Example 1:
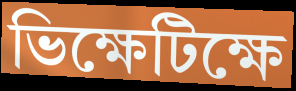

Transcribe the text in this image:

ভিক্ষেটিক্ষে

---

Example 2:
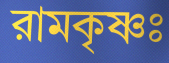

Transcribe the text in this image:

রামকৃষ্ণঃ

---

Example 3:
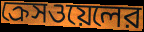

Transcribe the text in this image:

ক্রেসওয়েলের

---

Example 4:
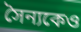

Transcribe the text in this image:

সৈন্যকেও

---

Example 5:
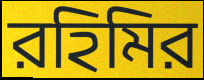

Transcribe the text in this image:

রহিমির